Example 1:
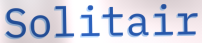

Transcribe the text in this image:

Solitair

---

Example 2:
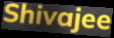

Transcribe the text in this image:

Shivajee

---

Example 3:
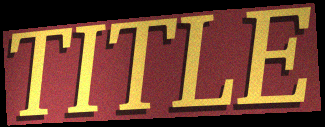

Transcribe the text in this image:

TITLE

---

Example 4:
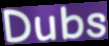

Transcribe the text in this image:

Dubs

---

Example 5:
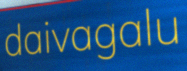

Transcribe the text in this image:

daivagalu